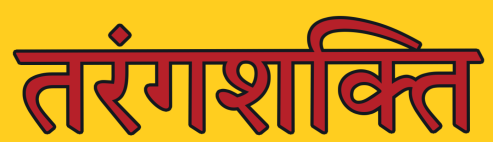
तरंगशक्ति